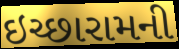
ઇચ્છારામની